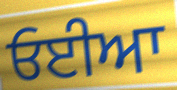
ਓਈਆ